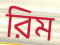
রিম